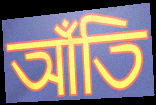
আঁতি